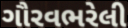
ગૌરવભરેલી